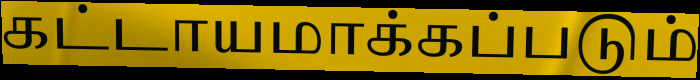
கட்டாயமாக்கப்படும்